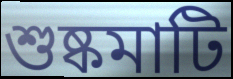
শুষ্কমাটি